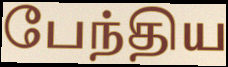
பேந்திய